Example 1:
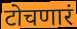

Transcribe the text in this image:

टोचणारं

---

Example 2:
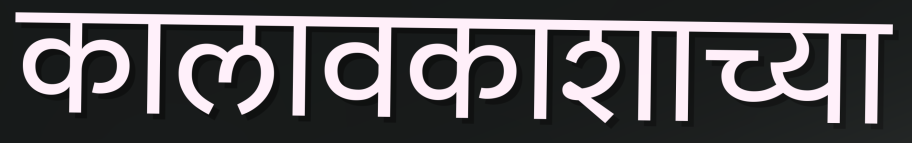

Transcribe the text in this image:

कालावकाशाच्या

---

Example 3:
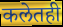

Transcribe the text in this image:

कलेतही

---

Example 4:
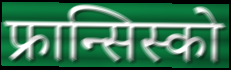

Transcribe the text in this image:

फ्रान्सिस्को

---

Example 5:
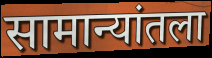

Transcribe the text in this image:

सामान्यांतला